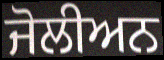
ਜੋਲੀਅਨ